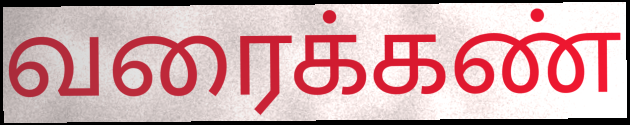
வரைக்கண்